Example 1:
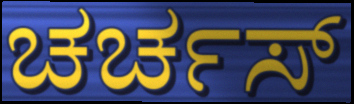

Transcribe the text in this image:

ಚರ್ಚಸ್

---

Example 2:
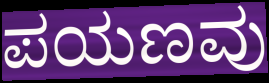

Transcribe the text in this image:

ಪಯಣವು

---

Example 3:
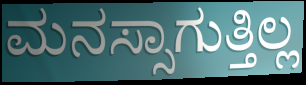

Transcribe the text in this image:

ಮನಸ್ಸಾಗುತ್ತಿಲ್ಲ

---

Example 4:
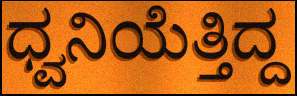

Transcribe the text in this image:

ಧ್ವನಿಯೆತ್ತಿದ್ದ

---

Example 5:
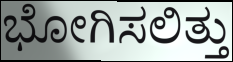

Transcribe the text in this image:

ಭೋಗಿಸಲಿತ್ತು